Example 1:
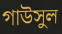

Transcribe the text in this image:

গাউসুল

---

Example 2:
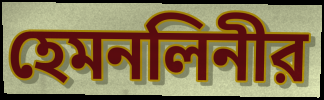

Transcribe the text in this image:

হেমনলিনীর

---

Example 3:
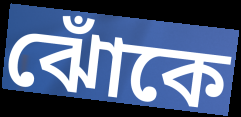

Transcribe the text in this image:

ঝোঁকে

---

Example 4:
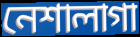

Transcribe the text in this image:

নেশালাগা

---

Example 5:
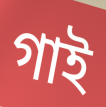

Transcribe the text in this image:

গাই